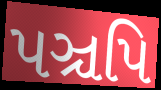
પઞ્ચપિ